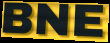
BNE